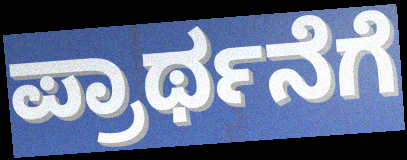
ಪ್ರಾರ್ಥನೆಗೆ